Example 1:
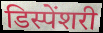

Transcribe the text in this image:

डिस्पेंशरी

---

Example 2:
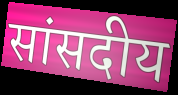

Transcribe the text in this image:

सांसदीय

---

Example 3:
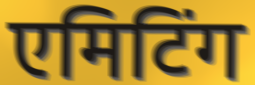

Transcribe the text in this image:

एमिटिंग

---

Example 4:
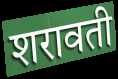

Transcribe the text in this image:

शरावती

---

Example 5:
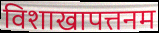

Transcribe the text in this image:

विशाखापत्तनम